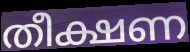
തീക്ഷണ